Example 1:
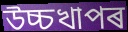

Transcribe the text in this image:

উচ্চখাপৰ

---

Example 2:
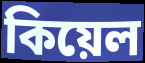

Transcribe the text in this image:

কিয়েল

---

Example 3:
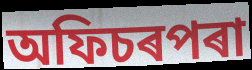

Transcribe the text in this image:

অফিচৰপৰা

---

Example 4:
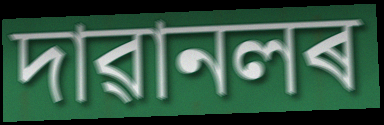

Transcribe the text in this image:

দাৱানলৰ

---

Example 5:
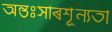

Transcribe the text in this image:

অন্তঃসাৰশূন্যতা